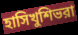
হাসিখুশিভরা